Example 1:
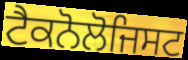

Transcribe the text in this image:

ਟੈਕਨੋਲੋਜਿਸਟ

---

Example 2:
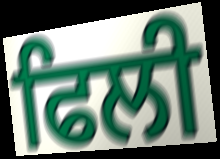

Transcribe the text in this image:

ਫਿਲੀ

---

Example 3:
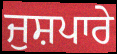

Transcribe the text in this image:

ਜੁਸ਼ਪਾਰੇ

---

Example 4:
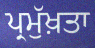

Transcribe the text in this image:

ਪ੍ਰਮੁੱਖ਼ਤਾ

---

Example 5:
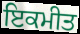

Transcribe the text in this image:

ਇਕਮੀਤ